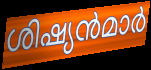
ശിഷ്യൻമാർ